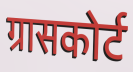
ग्रासकोर्ट